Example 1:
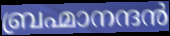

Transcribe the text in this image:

ബ്രഹ്മാനന്ദൻ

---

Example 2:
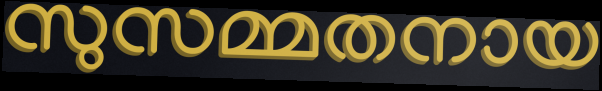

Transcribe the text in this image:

സുസമ്മതനായ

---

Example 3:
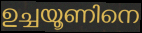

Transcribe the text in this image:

ഉച്ചയൂണിനെ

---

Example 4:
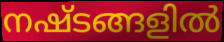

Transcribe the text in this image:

നഷ്ടങ്ങളിൽ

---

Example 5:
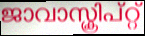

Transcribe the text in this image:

ജാവാസ്ക്രിപ്റ്റ്